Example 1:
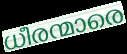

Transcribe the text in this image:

ധീരന്മാരെ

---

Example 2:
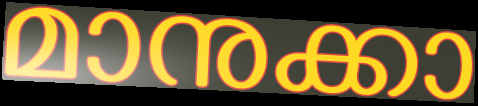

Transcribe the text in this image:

മാനുക്കാ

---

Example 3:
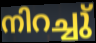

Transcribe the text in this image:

നിറച്ചു്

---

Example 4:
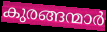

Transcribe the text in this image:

കുരങ്ങന്മാർ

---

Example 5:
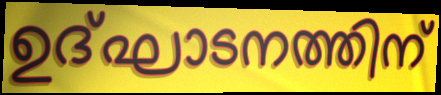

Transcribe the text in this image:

ഉദ്ഘാടനത്തിന്